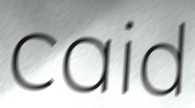
caid